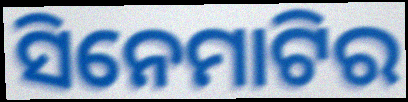
ସିନେମାଟିର